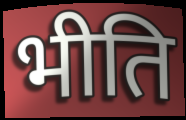
भीति